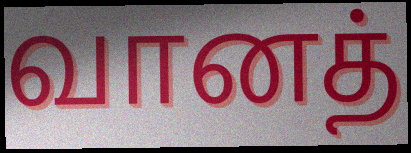
வானத்